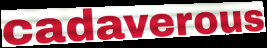
cadaverous